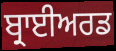
ਬ੍ਰਾਈਅਰਡ